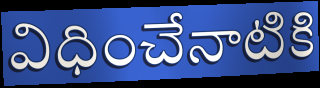
విధించేనాటికి